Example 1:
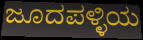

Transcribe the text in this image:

ಜೂದಪಳ್ಳಿಯ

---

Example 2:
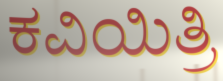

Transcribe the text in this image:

ಕವಿಯಿತ್ರಿ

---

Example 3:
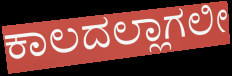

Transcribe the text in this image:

ಕಾಲದಲ್ಲಾಗಲೀ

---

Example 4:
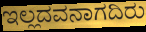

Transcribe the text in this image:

ಇಲ್ಲದವನಾಗದಿರು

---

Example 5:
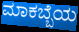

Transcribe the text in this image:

ಮಾಕಬ್ಬೆಯ